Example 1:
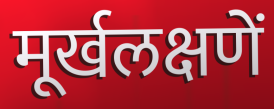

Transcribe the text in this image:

मूर्खलक्षणें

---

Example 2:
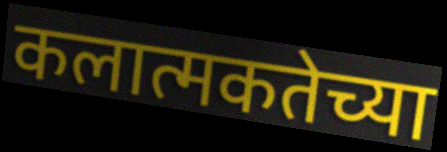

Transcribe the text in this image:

कलात्मकतेच्या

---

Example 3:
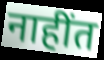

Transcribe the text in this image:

नाहींत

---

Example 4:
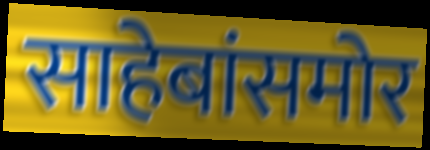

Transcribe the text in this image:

साहेबांसमोर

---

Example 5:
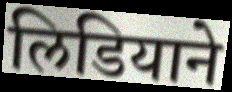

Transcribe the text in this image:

लिडियाने